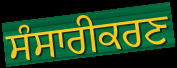
ਸੰਸਾਰੀਕਰਣ